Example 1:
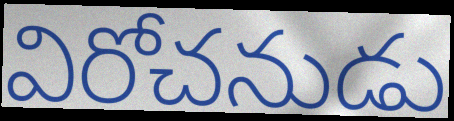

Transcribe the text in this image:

విరోచనుడు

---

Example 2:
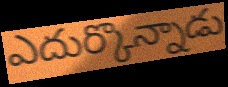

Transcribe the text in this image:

ఎదుర్కొన్నాడు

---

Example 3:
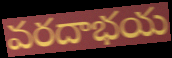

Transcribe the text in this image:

వరదాభయ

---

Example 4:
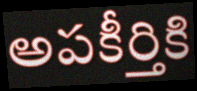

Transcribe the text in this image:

అపకీర్తికి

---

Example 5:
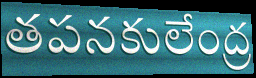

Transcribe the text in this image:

తపనకులేంద్ర